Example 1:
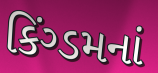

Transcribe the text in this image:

કિંગ્ડમનાં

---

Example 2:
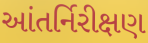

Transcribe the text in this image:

આંતર્નિરીક્ષણ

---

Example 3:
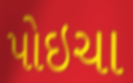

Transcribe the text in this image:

પોઇચા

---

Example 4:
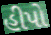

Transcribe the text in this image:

હીપો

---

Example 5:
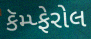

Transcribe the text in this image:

કૅમ્પ્ફેરોલ